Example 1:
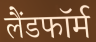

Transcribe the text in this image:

लैंडफॉर्म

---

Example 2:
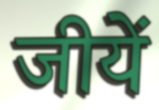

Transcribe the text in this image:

जीयें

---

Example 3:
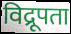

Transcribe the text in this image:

विद्रूपता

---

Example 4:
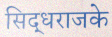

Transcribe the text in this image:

सिद्धराजके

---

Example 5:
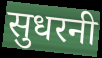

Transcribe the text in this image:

सुधरनी